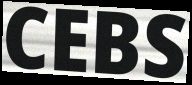
CEBS